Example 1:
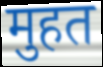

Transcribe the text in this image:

मुहत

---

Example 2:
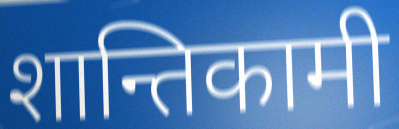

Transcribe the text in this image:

शान्तिकामी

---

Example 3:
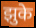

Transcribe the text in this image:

झुके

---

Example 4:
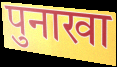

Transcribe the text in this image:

पुनाखा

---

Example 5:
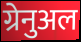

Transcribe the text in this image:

ग्रेनुअल